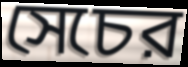
সেচের